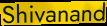
Shivanand